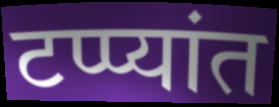
टप्प्यांत